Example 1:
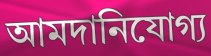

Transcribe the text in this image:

আমদানিযোগ্য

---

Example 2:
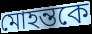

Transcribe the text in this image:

মোহন্তকে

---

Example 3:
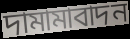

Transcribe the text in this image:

দামামাবাদন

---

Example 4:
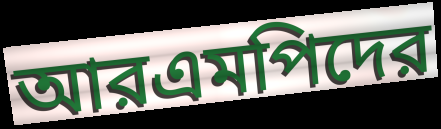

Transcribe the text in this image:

আরএমপিদের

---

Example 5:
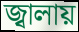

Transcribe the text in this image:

জ্বালায়